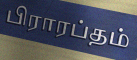
பிராரப்தம்